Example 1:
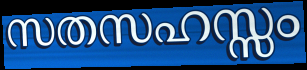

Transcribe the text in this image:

സതസഹസ്സം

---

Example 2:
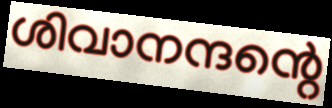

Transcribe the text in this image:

ശിവാനന്ദന്റെ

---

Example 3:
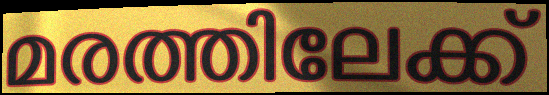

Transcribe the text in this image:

മരത്തിലേക്ക്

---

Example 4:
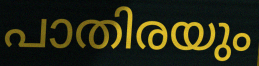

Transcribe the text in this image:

പാതിരയും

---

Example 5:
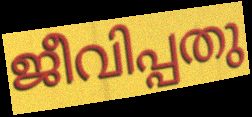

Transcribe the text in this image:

ജീവിപ്പതു